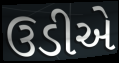
ઉડીએ